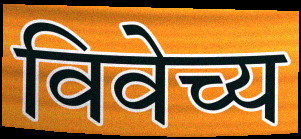
विवेच्य